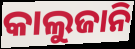
କାଲୁଜାନି